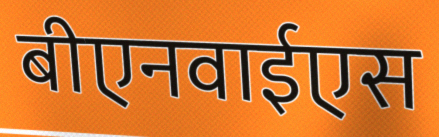
बीएनवाईएस